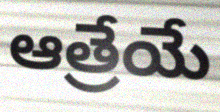
ఆత్రేయే